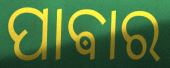
ପାଵାର